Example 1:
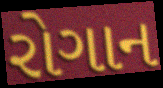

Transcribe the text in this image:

રોગાન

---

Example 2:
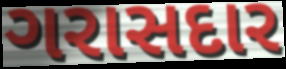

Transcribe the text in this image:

ગરાસદાર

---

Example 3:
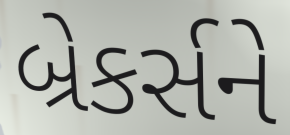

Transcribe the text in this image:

બ્રેકર્સને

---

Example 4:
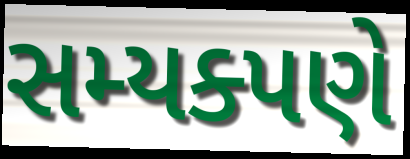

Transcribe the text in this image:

સમ્યક્પણે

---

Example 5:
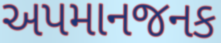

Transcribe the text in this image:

અપમાનજનક